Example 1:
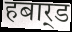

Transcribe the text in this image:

हबार्ड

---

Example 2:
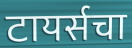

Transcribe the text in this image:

टायर्सचा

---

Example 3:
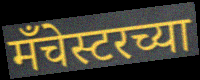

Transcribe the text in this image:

मँचेस्टरच्या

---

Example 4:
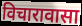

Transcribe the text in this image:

विचारावासा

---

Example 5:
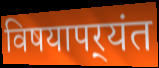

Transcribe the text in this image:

विषयापर्यंत